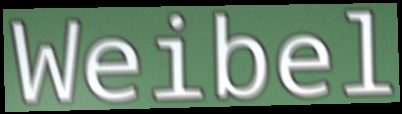
Weibel